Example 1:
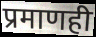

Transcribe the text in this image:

प्रमाणही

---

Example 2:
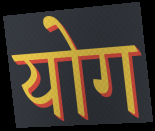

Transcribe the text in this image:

योग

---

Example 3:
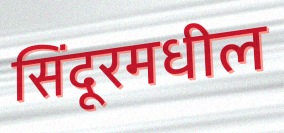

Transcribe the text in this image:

सिंदूरमधील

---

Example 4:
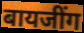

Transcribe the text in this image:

बायजींग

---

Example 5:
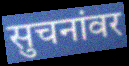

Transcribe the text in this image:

सुचनांवर